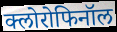
क्लोरोफिनॉल